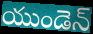
యుండెన్